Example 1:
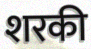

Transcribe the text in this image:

शरकी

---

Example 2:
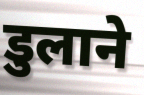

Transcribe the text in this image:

डुलाने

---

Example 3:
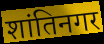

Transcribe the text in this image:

शांतिनगर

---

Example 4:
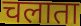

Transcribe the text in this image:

चलाता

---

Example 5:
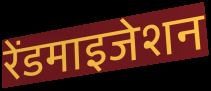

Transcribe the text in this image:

रेंडमाइजेशन